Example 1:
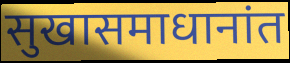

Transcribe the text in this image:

सुखासमाधानांत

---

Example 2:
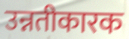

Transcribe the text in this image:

उन्नतीकारक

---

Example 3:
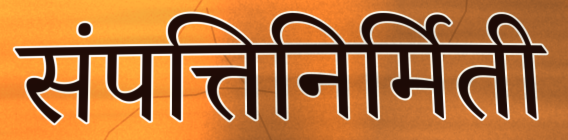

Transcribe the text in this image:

संपत्तिनिर्मिती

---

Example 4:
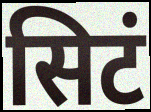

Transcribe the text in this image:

सिटं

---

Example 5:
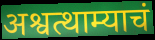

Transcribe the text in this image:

अश्वत्थाम्याचं